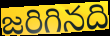
జరిగినది